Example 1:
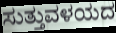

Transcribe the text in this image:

ಸುತ್ತುವಳಯದ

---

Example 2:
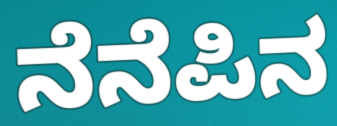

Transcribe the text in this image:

ನೆನೆಪಿನ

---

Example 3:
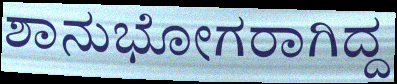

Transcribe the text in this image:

ಶಾನುಭೋಗರಾಗಿದ್ದ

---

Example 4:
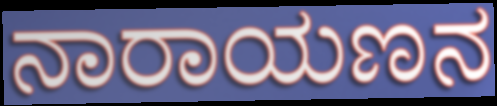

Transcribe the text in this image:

ನಾರಾಯಣನ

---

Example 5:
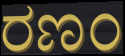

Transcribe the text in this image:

ರಣಂ